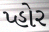
પ્હોર